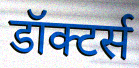
डॉक्टर्स